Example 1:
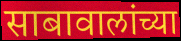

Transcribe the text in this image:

साबावालांच्या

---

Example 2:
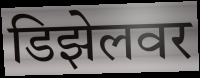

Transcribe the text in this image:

डिझेलवर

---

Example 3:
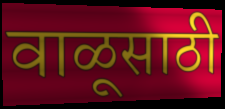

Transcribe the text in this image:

वाळूसाठी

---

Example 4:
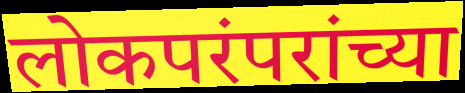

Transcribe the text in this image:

लोकपरंपरांच्या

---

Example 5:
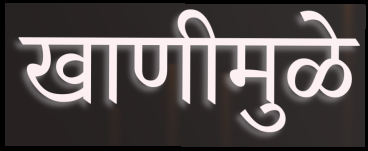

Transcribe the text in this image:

खाणीमुळे